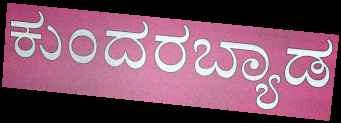
ಕುಂದರಬ್ಯಾಡ